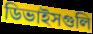
ডিভাইসগুলি